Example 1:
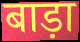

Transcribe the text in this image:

बाड़ा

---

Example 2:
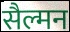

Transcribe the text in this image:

सैल्मन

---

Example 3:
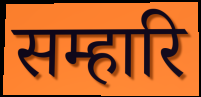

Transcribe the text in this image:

सम्हारि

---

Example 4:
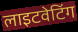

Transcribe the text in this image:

लाइटवेटिंग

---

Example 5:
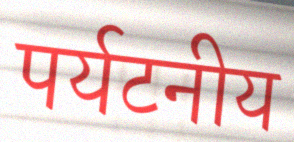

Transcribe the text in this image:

पर्यटनीय